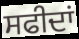
ਸਫੀਦਾਂ